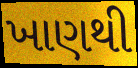
ખાણથી